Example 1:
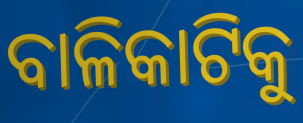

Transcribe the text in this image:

ବାଳିକାଟିକୁ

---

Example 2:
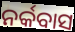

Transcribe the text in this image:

ନର୍କବାସ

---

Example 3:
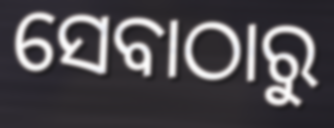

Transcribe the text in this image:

ସେବାଠାରୁ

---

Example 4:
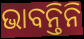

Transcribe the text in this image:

ଭାବନ୍ତିନି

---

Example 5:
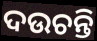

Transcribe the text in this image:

ଦଉଚନ୍ତି